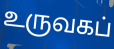
உருவகப்